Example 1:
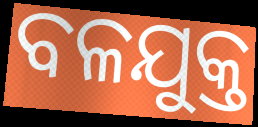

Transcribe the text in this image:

ବଳଯୁକ୍ତ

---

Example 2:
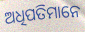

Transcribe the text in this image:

ଅଧିପତିମାନେ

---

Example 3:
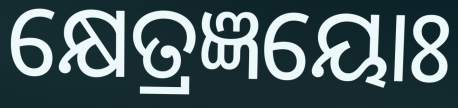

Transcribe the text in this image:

କ୍ଷେତ୍ରଜ୍ଞୟୋଃ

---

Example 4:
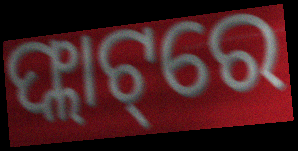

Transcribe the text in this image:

ଫ୍ଲାଟ୍‌ରେ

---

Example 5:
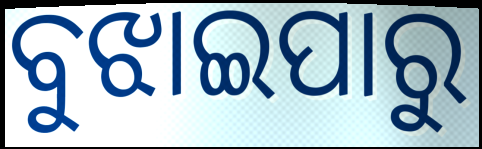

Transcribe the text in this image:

ବୁଝାଇପାରୁ